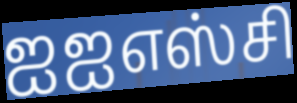
ஐஐஎஸ்சி